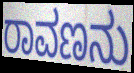
ರಾವಣನು